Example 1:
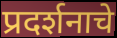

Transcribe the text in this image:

प्रदर्शनाचे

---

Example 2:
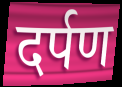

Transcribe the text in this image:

दर्पण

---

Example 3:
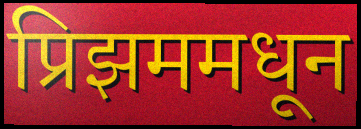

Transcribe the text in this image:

प्रिझममधून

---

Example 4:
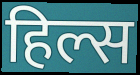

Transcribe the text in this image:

हिल्स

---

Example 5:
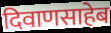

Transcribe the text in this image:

दिवाणसाहेब